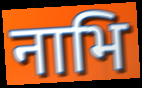
नाभि